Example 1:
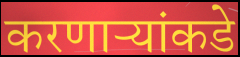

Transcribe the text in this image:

करणाऱ्यांकडे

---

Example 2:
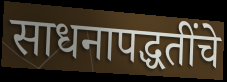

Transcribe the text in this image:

साधनापद्धतींचे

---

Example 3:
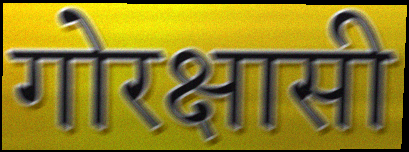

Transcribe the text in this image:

गोरक्षासी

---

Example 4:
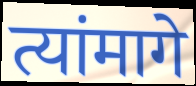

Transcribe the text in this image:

त्यांमागे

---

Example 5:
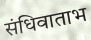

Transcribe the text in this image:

संधिवाताभ